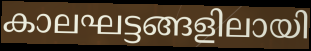
കാലഘട്ടങ്ങളിലായി